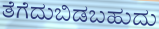
ತೆಗೆದುಬಿಡಬಹುದು